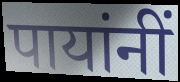
पायांनीं